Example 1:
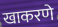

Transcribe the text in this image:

खाकरणे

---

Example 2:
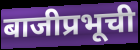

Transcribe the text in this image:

बाजीप्रभूची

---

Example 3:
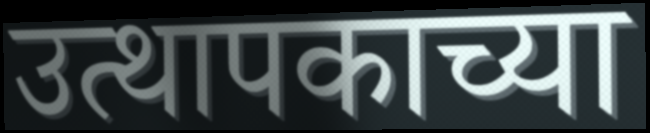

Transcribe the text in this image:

उत्थापकाच्या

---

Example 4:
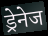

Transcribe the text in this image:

ड्रेनेज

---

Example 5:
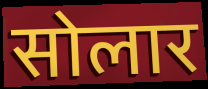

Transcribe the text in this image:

सोलार